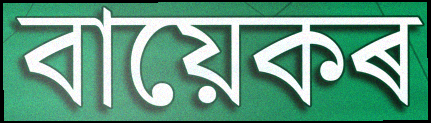
বায়েকৰ